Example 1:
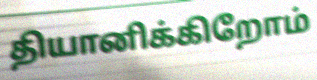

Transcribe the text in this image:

தியானிக்கிறோம்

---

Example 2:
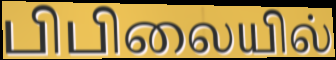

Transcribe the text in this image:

பிபிலையில்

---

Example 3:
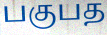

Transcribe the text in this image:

பகுபத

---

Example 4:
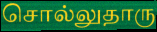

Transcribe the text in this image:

சொல்லுதாரு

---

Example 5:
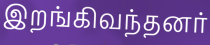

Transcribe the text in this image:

இறங்கிவந்தனர்